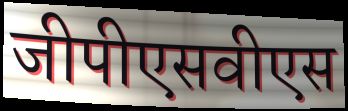
जीपीएसवीएस